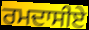
ਰਮਦਾਸੀਏ